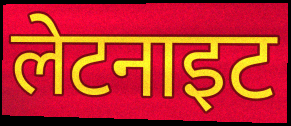
लेटनाइट